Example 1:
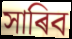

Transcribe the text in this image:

সাৰিব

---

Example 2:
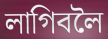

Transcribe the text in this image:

লাগিবলৈ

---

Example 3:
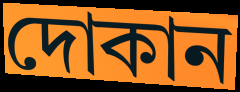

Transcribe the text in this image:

দোকান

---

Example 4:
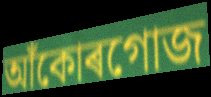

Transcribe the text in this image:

আঁকোৰগোজ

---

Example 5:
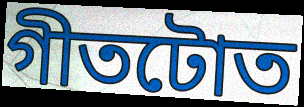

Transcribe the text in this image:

গীতটোত